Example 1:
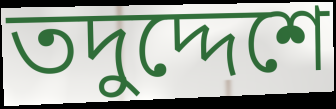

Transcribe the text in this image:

তদুদ্দেশে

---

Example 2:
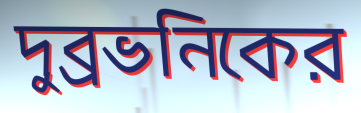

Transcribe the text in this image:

দুব্রভনিকের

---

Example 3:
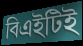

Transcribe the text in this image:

বিএইটিই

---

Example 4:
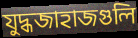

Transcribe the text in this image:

যুদ্ধজাহাজগুলি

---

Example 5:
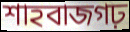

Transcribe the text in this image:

শাহবাজগঢ়